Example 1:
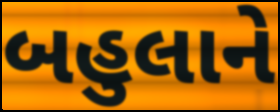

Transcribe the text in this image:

બહુલાને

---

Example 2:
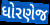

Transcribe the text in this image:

ધોરણેજ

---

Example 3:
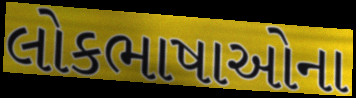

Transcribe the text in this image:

લોકભાષાઓના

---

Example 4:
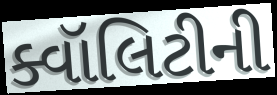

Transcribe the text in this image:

ક્વૉલિટીની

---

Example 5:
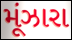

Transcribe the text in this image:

મૂંઝારા